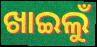
ଖାଇଲୁଁ